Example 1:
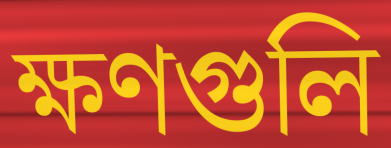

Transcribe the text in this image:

ক্ষণগুলি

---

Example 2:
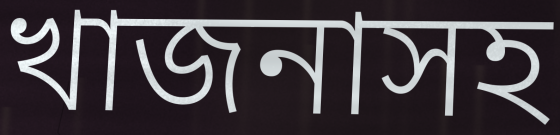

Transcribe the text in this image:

খাজনাসহ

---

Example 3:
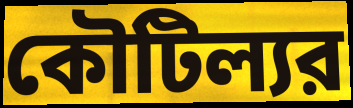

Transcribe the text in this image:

কৌটিল্যর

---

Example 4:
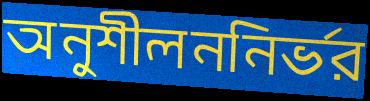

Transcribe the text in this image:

অনুশীলননির্ভর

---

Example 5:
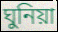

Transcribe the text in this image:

ঘুনিয়া